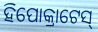
ହିପୋକ୍ରାଟେସ୍